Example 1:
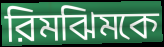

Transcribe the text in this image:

রিমঝিমকে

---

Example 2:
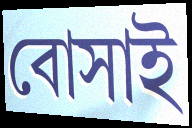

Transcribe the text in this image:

বোসাই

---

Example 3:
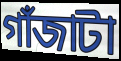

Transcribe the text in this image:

গাঁজাটা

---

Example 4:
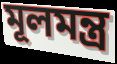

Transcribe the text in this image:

মূলমন্ত্র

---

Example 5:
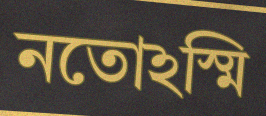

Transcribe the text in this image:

নতোঽস্মি